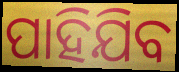
ପାହିଯିବ